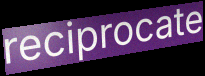
reciprocate